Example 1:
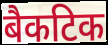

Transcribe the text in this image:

बैकटिक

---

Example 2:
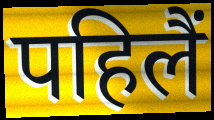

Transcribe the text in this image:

पहिलैं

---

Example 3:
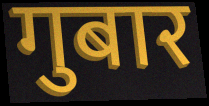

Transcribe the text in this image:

गुबार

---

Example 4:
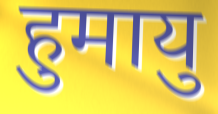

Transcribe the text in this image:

हुमायु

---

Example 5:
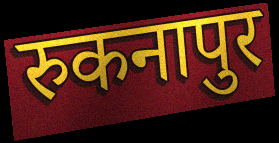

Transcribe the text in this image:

रुकनापुर